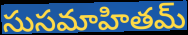
సుసమాహితమ్